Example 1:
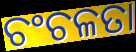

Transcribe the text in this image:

ଚଂଚଳତା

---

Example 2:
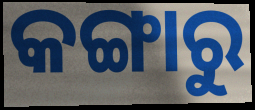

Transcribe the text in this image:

କଙ୍ଗାରୁ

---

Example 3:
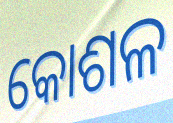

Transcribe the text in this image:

କୋଶଳ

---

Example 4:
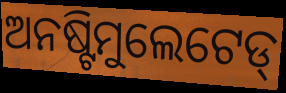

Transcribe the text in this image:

ଅନଷ୍ଟିମୁଲେଟେଡ୍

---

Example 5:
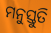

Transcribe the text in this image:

ମନୁସ୍ତୁତି